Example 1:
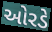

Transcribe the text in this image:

ઓરડે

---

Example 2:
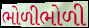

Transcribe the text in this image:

ભોળીભોળી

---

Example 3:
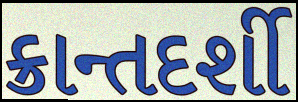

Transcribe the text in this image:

ક્રાન્તદર્શી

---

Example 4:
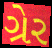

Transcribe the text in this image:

ગ્રેર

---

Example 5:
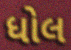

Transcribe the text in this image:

ધોલ